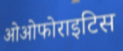
ओओफोराइटिस